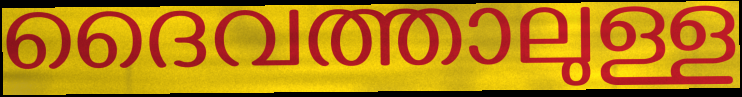
ദൈവത്താലുള്ള